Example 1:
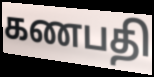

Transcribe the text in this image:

கணபதி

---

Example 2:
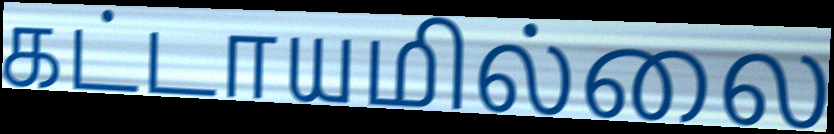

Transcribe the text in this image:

கட்டாயமில்லை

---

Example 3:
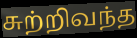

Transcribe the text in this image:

சுற்றிவந்த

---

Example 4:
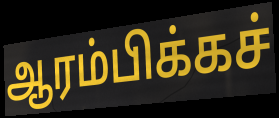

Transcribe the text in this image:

ஆரம்பிக்கச்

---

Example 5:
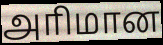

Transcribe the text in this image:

அரிமான